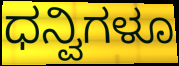
ಧನ್ವಿಗಳೂ